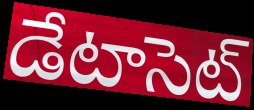
డేటాసెట్